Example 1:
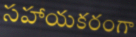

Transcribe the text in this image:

సహాయకరంగా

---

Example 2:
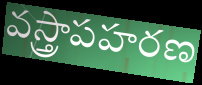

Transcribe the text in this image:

వస్త్రాపహరణ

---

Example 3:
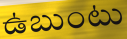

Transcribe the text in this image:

ఉబుంటు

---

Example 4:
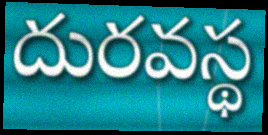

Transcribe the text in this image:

దురవస్థ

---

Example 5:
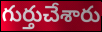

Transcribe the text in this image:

గుర్తుచేశారు